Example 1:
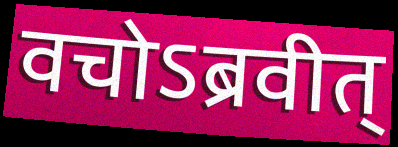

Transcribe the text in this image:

वचोऽब्रवीत्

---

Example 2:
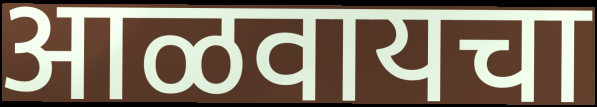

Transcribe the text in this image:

आळवायचा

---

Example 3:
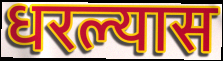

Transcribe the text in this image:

धरल्यास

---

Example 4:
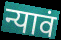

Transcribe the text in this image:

न्यावं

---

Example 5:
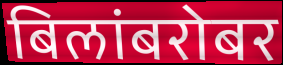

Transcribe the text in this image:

बिलांबरोबर